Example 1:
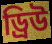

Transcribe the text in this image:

ড্রিউ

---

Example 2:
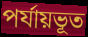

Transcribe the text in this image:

পর্যায়ভূত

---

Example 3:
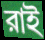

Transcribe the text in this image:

রাই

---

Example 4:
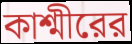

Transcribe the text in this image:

কাশ্মীরের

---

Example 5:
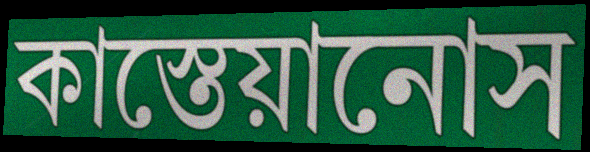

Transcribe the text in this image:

কাস্তেয়ানোস